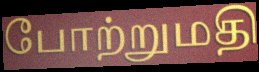
போற்றுமதி